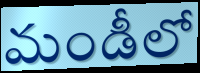
మండీలో